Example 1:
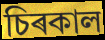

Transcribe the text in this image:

চিৰকাল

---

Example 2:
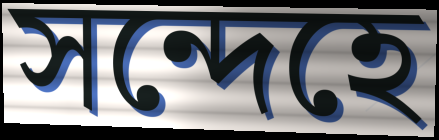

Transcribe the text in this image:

সন্দেহে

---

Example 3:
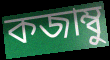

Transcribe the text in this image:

কজাম্বু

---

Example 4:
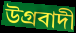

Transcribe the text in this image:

উগ্ৰবাদী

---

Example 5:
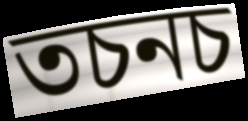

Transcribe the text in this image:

তচনচ